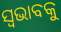
ସ୍ୱଭାବକୁ